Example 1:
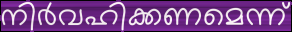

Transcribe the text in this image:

നിർവഹിക്കണമെന്ന്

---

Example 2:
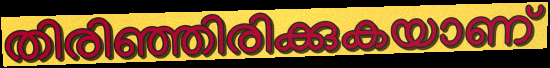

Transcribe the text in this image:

തിരിഞ്ഞിരിക്കുകയാണ്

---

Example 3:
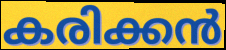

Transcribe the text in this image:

കരിക്കൻ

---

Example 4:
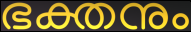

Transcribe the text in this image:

ഭക്തനും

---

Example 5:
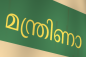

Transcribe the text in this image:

മന്ത്രിണാ